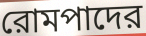
রোমপাদের